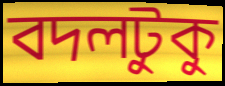
বদলটুকু